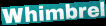
Whimbrel